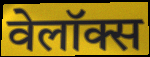
वेलॉक्स